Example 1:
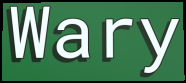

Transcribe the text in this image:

Wary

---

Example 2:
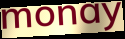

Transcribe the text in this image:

monay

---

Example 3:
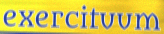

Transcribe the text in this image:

exercituum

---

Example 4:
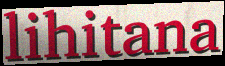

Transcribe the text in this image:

lihitana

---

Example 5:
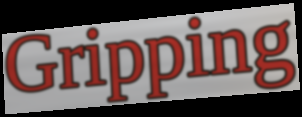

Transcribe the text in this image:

Gripping